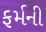
ફર્મની